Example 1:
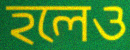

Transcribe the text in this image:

হলেও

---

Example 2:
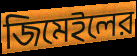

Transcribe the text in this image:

জিমেইলের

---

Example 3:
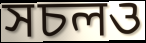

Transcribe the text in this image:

সচলও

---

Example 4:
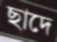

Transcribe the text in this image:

ছাদে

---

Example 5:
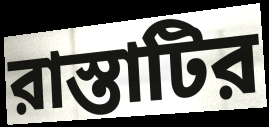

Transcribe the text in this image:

রাস্তাটির